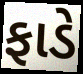
ફાડે